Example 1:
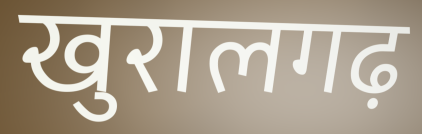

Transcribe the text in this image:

खुरालगढ़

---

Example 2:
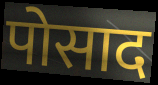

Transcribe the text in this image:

पोसाद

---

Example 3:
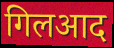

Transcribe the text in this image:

गिलआद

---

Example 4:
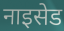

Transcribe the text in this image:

नाइसेड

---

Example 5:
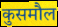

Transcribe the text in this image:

कुसमौल